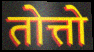
तोत्तो